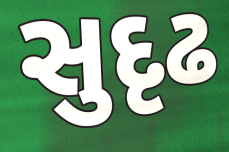
સુદૃઢ